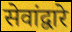
सेवांद्वारे